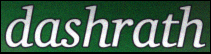
dashrath